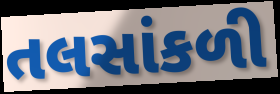
તલસાંકળી